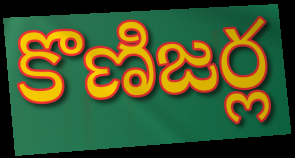
కొణిజర్ల